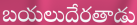
బయలుదేరతాడు